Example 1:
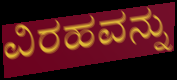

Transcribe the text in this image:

ವಿರಹವನ್ನು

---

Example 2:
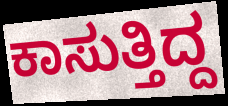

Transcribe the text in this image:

ಕಾಸುತ್ತಿದ್ದ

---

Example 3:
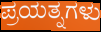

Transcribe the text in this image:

ಪ್ರಯತ್ನಗಳು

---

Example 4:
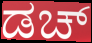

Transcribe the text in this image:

ಡಚ್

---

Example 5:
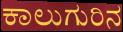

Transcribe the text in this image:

ಕಾಲುಗುರಿನ